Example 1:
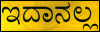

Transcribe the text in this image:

ಇದಾನಲ್ಲ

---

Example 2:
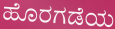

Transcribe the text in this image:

ಹೊರಗಡೆಯ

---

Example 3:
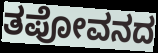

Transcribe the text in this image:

ತಪೋವನದ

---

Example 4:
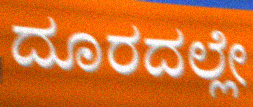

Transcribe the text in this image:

ದೂರದಲ್ಲೇ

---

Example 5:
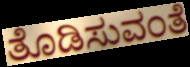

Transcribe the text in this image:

ತೊಡಿಸುವಂತೆ